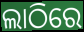
ଲାଠିରେ